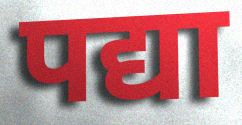
पद्या